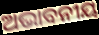
ଅଭାବନୀୟ